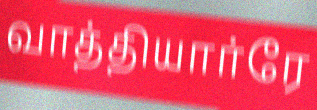
வாத்தியார்ரே